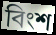
বিংশ